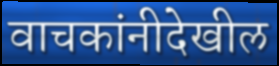
वाचकांनीदेखील